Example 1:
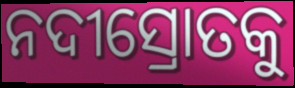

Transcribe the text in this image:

ନଦୀସ୍ରୋତକୁ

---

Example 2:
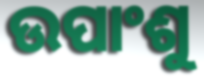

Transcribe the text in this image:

ଉପାଂଶୁ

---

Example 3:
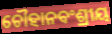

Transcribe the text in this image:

ଚୌହାନବଂଶ୍ରୀୟ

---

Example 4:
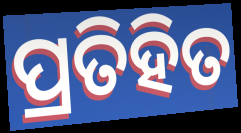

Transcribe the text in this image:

ପ୍ରତିହିତ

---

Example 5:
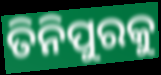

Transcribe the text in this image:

ତିନିପୁରକୁ